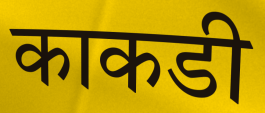
काकडी